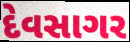
દેવસાગર